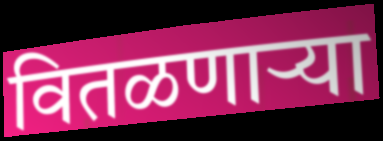
वितळणाऱ्या